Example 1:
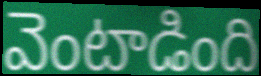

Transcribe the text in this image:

వెంటాడింది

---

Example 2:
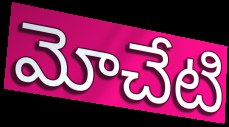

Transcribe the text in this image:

మోచేటి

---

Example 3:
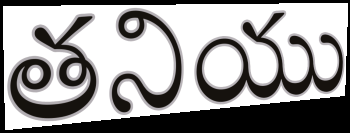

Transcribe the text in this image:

తనియు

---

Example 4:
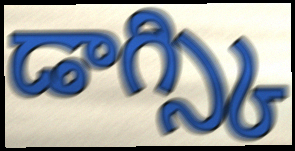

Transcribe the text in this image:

డాగ్స్కి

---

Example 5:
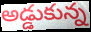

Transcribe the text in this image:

అడ్డుకున్న